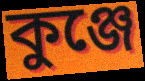
কুঞ্জে